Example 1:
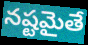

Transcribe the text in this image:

నష్టమైతే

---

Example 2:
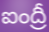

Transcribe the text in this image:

ఐంద్రీ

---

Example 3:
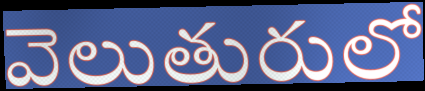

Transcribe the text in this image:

వెలుతురులో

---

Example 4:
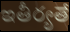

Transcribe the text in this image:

ఇతీర్యతే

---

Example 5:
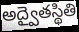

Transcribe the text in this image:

అద్వైతస్థితి